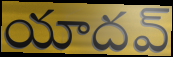
యాదవ్